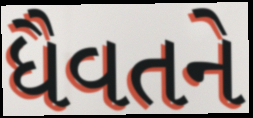
ધૈવતને